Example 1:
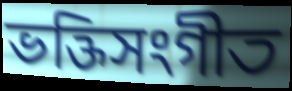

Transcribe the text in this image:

ভক্তিসংগীত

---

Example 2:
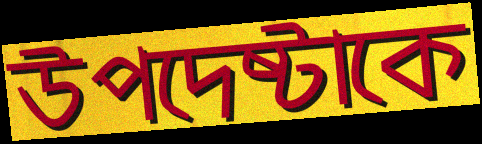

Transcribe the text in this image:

উপদেষ্টাকে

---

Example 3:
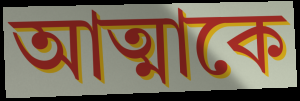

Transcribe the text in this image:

আত্মাকে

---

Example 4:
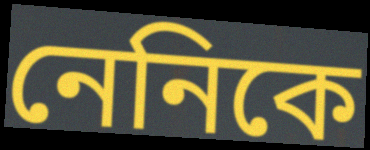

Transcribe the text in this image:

নেনিকে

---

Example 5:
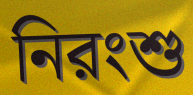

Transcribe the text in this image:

নিরংশু